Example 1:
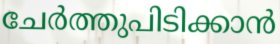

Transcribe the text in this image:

ചേർത്തുപിടിക്കാൻ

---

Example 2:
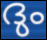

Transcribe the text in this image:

ദും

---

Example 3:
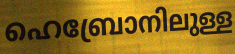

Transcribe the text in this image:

ഹെബ്രോനിലുള്ള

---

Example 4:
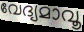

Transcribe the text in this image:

വേദ്യമാവൂ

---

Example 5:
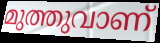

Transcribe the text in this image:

മുത്തുവാണ്